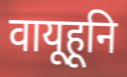
वायूहूनि